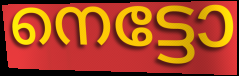
നെട്ടോ